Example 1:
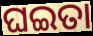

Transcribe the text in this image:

ଘଇତା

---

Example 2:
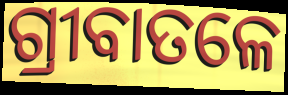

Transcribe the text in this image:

ଗ୍ରୀବାତଳେ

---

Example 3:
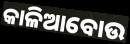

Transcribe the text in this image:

କାଳିଆବୋଉ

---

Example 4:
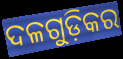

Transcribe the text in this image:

ଦଳଗୁଡ଼ିକର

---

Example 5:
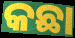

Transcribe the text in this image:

କଛା